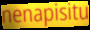
nenapisitu